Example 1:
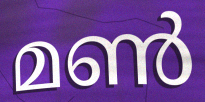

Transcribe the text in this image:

മൺ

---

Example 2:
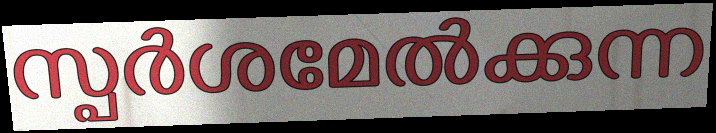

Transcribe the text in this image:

സ്പർശമേൽക്കുന്ന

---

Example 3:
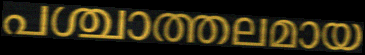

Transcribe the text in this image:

പശ്ചാത്തലമായ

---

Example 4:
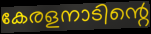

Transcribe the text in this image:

കേരളനാടിന്റെ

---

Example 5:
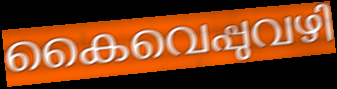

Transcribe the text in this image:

കൈവെപ്പുവഴി